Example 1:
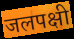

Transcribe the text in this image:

जलपक्षी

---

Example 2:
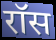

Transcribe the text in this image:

रॉस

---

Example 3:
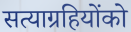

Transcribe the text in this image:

सत्याग्रहियोंको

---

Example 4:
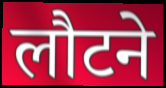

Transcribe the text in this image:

लौटने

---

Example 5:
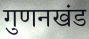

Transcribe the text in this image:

गुणनखंड